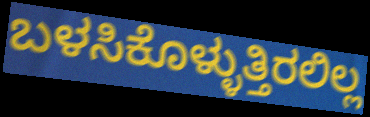
ಬಳಸಿಕೊಳ್ಳುತ್ತಿರಲಿಲ್ಲ